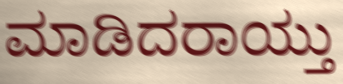
ಮಾಡಿದರಾಯ್ತು